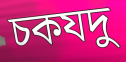
চকযদু